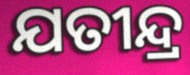
ଯତୀନ୍ଦ୍ର